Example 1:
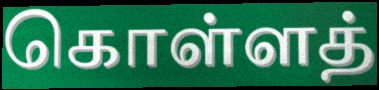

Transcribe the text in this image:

கொள்ளத்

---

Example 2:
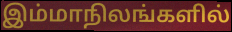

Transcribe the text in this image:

இம்மாநிலங்களில்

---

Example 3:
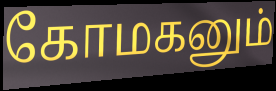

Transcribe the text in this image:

கோமகனும்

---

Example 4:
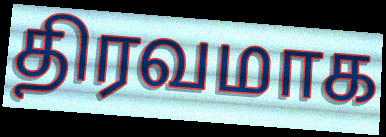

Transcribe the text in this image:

திரவமாக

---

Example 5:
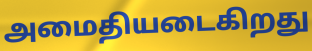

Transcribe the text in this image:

அமைதியடைகிறது